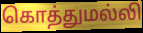
கொத்துமல்லி